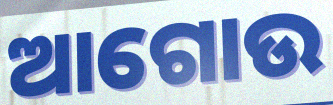
ଆଗୋଉ